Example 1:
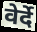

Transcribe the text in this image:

वेर्दे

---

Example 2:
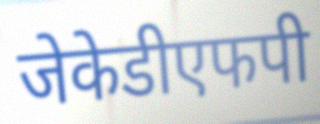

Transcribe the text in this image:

जेकेडीएफपी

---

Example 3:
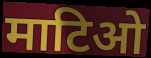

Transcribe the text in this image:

माटिओ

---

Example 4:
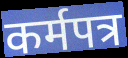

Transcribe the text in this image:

कर्मपत्र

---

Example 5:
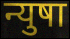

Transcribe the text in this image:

न्युषा